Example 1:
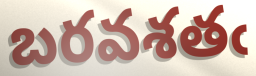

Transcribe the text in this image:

బరవశతఁ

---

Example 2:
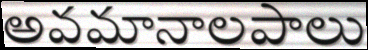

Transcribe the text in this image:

అవమానాలపాలు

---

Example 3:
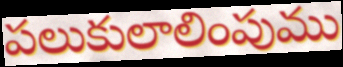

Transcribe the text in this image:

పలుకులాలింపుము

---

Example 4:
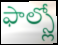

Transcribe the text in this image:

ఫాల్స్లో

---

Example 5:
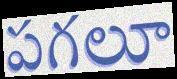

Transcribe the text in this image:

పగలూ